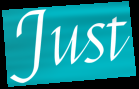
Just